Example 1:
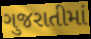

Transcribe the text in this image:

ગુજરાતીમાં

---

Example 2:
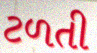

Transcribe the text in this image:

ટળતી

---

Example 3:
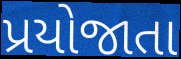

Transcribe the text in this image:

પ્રયોજાતા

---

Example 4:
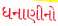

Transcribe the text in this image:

ધનાણીનો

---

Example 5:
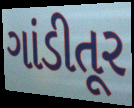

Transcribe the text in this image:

ગાંડીતૂર